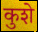
कुशे